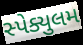
સ્પેક્યુલમ